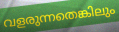
വളരുന്നതെങ്കിലും